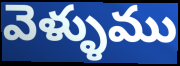
వెళ్ళుము